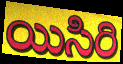
యిసిరి